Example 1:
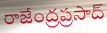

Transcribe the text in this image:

రాజేంద్రప్రసాద్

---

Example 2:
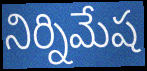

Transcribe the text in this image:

నిర్నిమేష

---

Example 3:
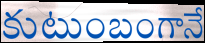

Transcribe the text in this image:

కుటుంబంగానే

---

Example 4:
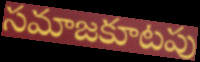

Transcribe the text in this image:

సమాజకూటపు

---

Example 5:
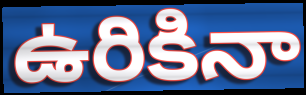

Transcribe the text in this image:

ఉరికినా